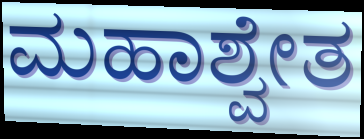
ಮಹಾಶ್ವೇತ